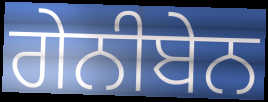
ਗੇਨੀਬੇਨ